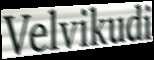
Velvikudi